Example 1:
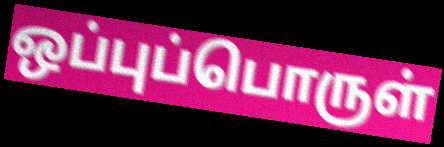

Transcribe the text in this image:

ஒப்புப்பொருள்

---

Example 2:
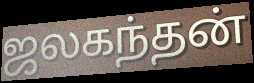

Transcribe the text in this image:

ஜலகந்தன்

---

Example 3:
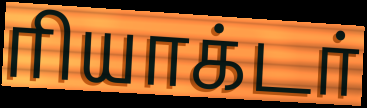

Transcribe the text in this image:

ரியாக்டர்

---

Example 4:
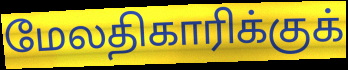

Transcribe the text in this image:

மேலதிகாரிக்குக்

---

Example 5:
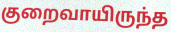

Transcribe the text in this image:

குறைவாயிருந்த